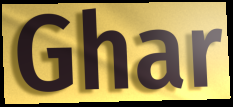
Ghar